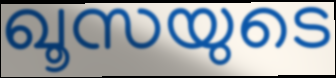
ഖൂസയുടെ